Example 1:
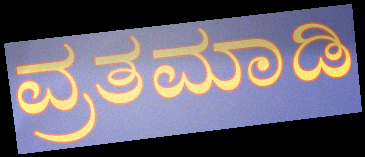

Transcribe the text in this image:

ವ್ರತಮಾಡಿ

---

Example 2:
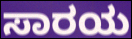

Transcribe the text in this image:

ಸಾರಯ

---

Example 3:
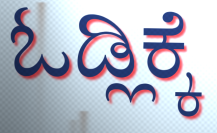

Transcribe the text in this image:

ಓಡ್ಲಿಕ್ಕೆ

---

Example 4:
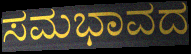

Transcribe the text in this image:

ಸಮಭಾವದ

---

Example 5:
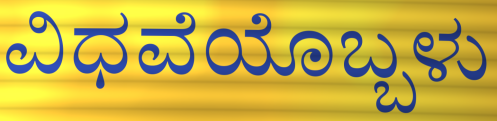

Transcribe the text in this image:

ವಿಧವೆಯೊಬ್ಬಳು